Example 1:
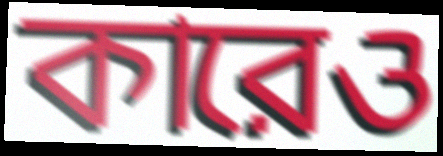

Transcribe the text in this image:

কারেও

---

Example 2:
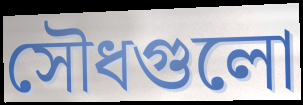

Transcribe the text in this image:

সৌধগুলো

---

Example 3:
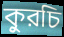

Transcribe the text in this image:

কুরচি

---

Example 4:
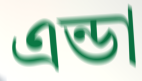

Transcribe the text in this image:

এন্ডা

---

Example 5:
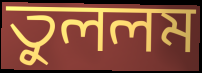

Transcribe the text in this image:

তুললম